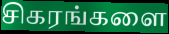
சிகரங்களை